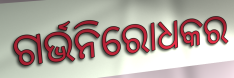
ଗର୍ଭନିରୋଧକର